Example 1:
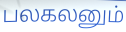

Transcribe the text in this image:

பலகலனும்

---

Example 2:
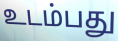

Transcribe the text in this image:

உடம்பது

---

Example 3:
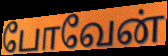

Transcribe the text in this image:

போவேன்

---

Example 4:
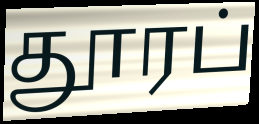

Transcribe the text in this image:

தூரப்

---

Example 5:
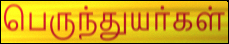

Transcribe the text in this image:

பெருந்துயர்கள்